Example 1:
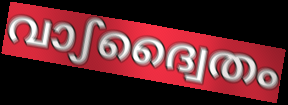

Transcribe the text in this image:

വാഽദ്വൈതം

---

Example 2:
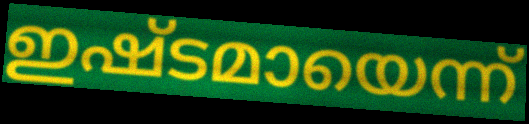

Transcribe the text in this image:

ഇഷ്ടമായെന്ന്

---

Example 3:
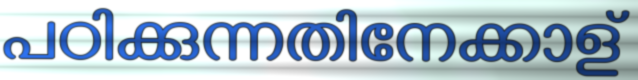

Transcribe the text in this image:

പഠിക്കുന്നതിനേക്കാള്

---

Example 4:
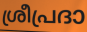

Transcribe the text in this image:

ശ്രീപ്രദാ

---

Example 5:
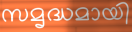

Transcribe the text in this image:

സമൃദ്ധമായി